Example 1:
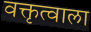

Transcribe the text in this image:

वक्तृत्वाला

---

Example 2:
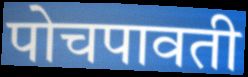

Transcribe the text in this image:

पोचपावती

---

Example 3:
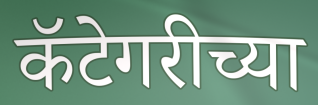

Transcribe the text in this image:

कॅटेगरीच्या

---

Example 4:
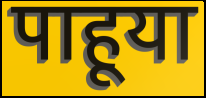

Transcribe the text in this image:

पाहूया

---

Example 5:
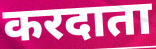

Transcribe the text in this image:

करदाता